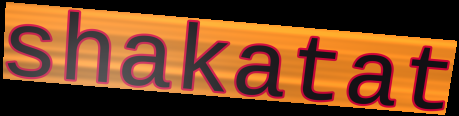
shakatat